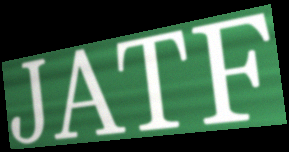
JATF